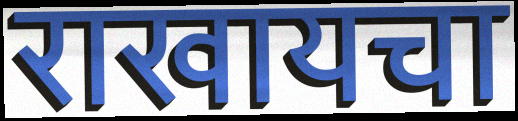
राखायचा